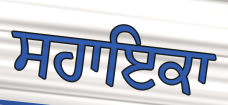
ਸਹਾਇਕਾ